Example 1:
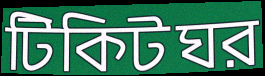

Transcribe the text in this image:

টিকিটঘর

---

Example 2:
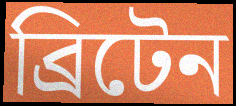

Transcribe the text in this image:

ব্রিটেন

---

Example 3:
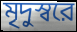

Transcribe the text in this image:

মৃদুস্বরে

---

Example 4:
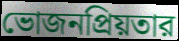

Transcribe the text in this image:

ভোজনপ্রিয়তার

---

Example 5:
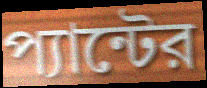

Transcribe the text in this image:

প্যান্টের